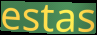
estas